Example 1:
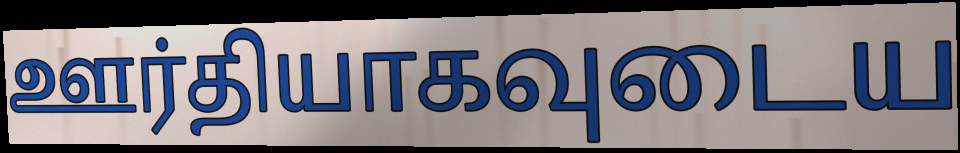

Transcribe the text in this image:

ஊர்தியாகவுடைய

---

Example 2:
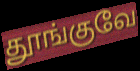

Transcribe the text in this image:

தூங்குவே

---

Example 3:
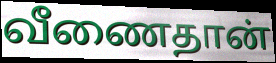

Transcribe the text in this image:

வீணைதான்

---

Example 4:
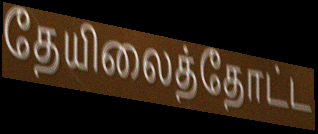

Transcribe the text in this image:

தேயிலைத்தோட்ட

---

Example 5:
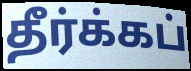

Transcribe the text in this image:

தீர்க்கப்